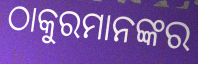
ଠାକୁରମାନଙ୍କର